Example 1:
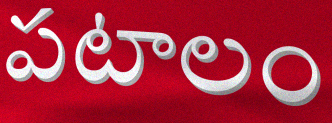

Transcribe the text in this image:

పటాలం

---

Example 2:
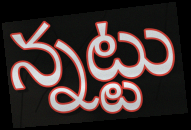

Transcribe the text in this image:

న్నట్టు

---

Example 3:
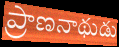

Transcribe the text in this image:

ప్రాణనాథుడు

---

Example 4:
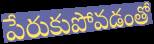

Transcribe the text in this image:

పేరుకుపోవడంతో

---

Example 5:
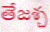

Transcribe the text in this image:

తేజశ్చ